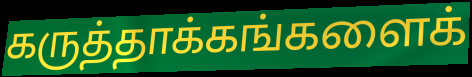
கருத்தாக்கங்களைக்